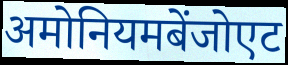
अमोनियमबेंजोएट